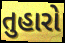
તુહારો